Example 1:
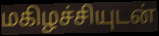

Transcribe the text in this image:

மகிழச்சியுடன்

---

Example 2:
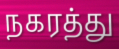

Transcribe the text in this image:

நகரத்து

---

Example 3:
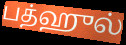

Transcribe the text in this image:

பத்ஹுல்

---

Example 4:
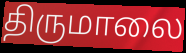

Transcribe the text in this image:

திருமாலை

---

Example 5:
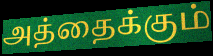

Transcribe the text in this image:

அத்தைக்கும்